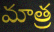
మాత్ర